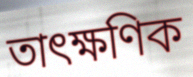
তাৎক্ষণিক